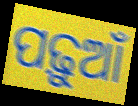
ପଢ଼ୁଆଁ